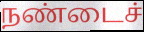
நண்டைச்